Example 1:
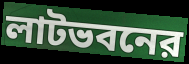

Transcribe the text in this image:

লাটভবনের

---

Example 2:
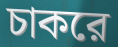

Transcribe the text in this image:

চাকরে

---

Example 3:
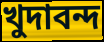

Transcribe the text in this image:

খুদাবন্দ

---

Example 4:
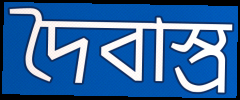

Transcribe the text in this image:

দৈবাস্ত্র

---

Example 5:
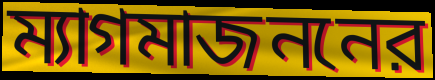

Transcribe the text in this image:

ম্যাগমাজননের